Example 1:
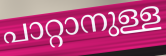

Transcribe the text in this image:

പാറ്റാനുള്ള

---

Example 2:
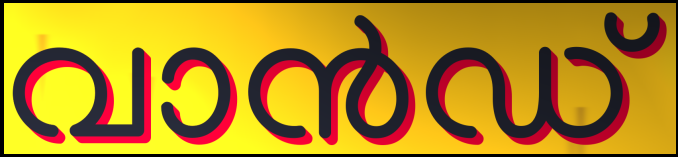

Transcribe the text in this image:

വാൻഡ്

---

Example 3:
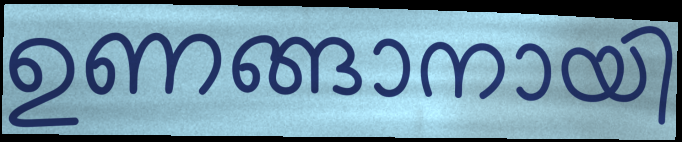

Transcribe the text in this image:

ഉണങ്ങാനായി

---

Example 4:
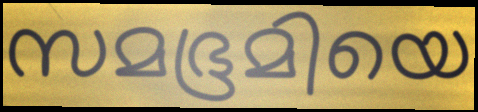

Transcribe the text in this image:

സമഭൂമിയെ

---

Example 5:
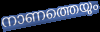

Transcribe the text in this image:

നാണത്തെയും